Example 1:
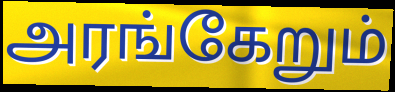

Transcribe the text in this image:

அரங்கேறும்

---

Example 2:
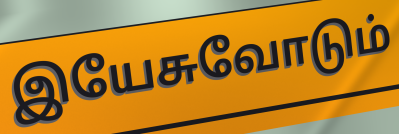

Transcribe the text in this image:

இயேசுவோடும்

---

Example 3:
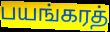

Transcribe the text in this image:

பயங்கரத்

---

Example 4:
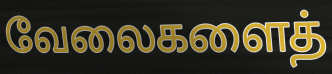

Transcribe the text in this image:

வேலைகளைத்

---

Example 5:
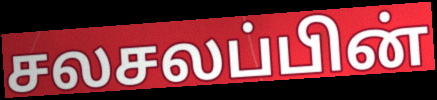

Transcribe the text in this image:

சலசலப்பின்